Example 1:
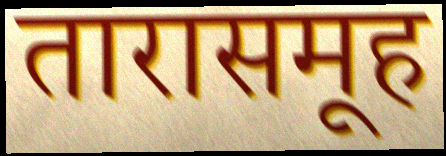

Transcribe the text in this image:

तारासमूह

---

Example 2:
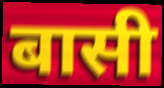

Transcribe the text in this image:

बासी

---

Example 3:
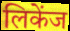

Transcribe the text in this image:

लिकेंज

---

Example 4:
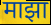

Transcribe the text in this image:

माझा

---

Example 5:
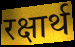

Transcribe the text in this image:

रक्षार्थ